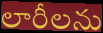
లారీలను